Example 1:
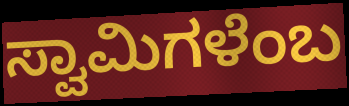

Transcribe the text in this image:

ಸ್ವಾಮಿಗಳೆಂಬ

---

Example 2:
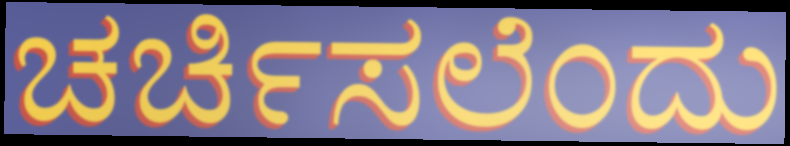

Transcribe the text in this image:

ಚರ್ಚಿಸಲೆಂದು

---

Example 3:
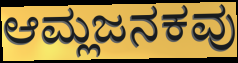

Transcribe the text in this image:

ಆಮ್ಲಜನಕವು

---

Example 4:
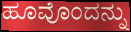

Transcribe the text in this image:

ಹೂವೊಂದನ್ನು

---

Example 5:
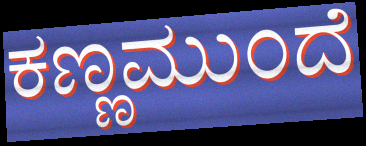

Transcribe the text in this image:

ಕಣ್ಣಮುಂದೆ